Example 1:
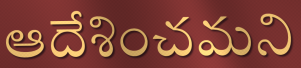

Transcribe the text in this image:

ఆదేశించమని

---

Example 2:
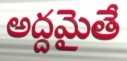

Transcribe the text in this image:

అద్దమైతే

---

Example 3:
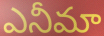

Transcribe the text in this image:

ఎనీమా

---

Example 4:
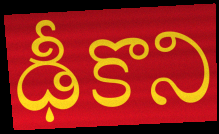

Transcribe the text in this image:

ఢీకొని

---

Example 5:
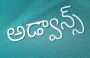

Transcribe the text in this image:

అడ్వాన్స్